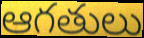
ఆగతులు